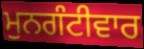
ਮੁਨਗੰਟੀਵਾਰ